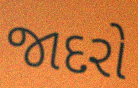
જાદરો